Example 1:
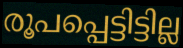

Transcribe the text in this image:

രൂപപ്പെട്ടിട്ടില്ല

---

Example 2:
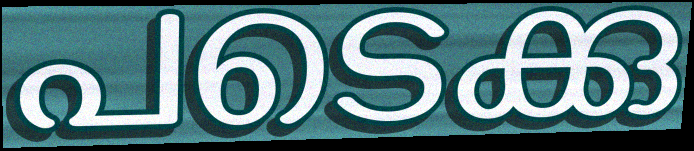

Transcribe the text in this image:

പടെക്കു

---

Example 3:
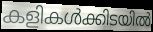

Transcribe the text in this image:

കളികൾക്കിടയിൽ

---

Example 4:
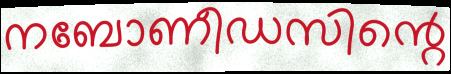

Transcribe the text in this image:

നബോണീഡസിന്റെ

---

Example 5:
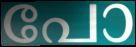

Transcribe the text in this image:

പോ